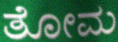
ತೋಮ